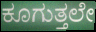
ಕೂಗುತ್ತಲೇ